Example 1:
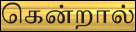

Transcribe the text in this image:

கென்றால்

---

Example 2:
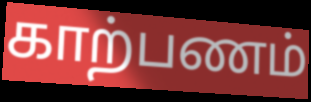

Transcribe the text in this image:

காற்பணம்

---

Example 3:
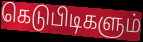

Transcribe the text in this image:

கெடுபிடிகளும்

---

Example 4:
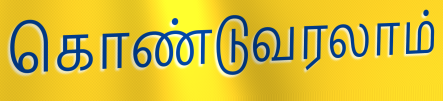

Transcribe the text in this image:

கொண்டுவரலாம்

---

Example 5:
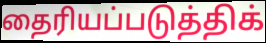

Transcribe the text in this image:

தைரியப்படுத்திக்